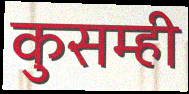
कुसम्ही